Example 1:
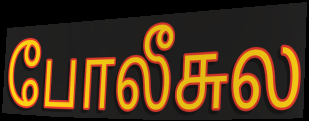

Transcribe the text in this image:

போலீசுல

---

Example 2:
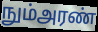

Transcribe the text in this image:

நும்அரண்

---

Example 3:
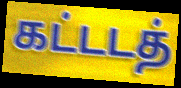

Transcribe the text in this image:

கட்டடத்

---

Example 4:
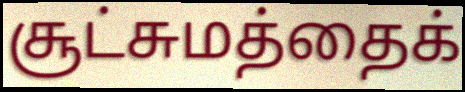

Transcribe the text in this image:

சூட்சுமத்தைக்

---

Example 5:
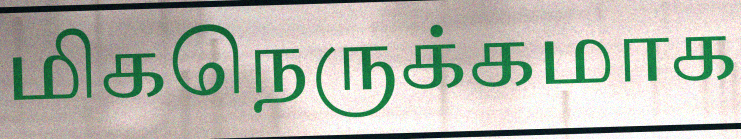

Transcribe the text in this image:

மிகநெருக்கமாக